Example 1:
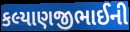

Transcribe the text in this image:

કલ્યાણજીભાઈની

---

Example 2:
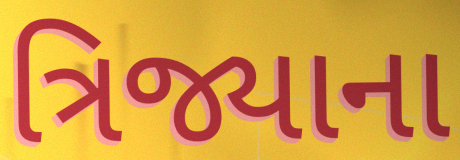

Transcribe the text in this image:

ત્રિજ્યાના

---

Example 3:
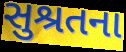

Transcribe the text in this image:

સુશ્રતના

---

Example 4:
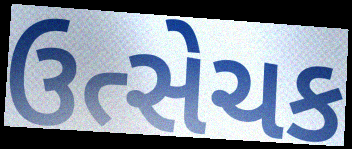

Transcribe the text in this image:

ઉત્સેચક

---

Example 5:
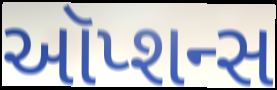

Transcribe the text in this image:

ઑપ્શન્સ